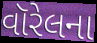
વૉરેલના